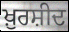
ਖ਼ੁਰਸ਼ੀਦ